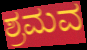
ಶ್ರಮವ